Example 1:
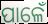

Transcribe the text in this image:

ପାଳେଁ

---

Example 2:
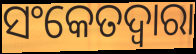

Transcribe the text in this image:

ସଂକେତଦ୍ୱାରା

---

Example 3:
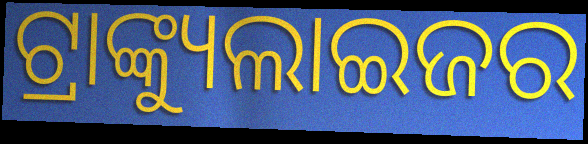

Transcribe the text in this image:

ଟ୍ରାଙ୍କ୍ୟୁଲାଇଜର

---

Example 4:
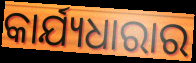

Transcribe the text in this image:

କାର୍ଯ୍ୟଧାରାର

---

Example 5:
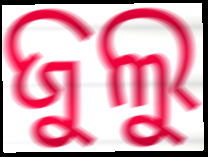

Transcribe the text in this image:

ଜୁଲୁ